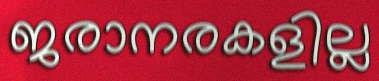
ജരാനരകളില്ല